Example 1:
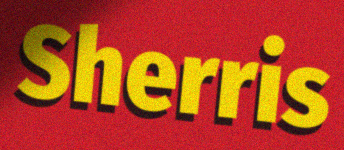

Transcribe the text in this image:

Sherris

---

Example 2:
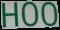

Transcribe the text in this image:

HOO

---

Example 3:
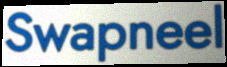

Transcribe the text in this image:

Swapneel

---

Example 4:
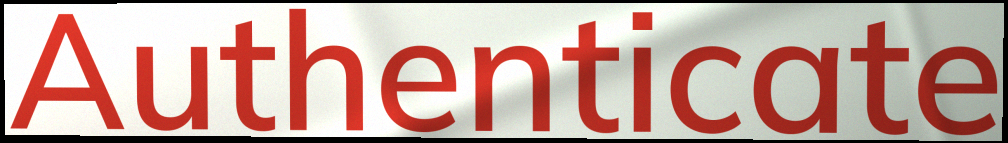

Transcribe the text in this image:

Authenticate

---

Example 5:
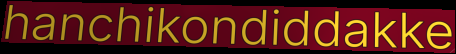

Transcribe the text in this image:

hanchikondiddakke